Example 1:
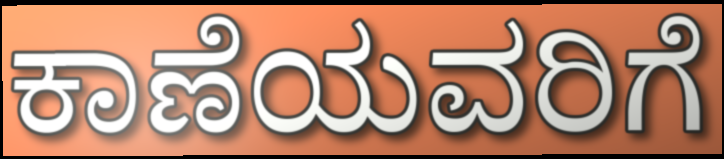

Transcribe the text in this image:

ಕಾಣೆಯವರಿಗೆ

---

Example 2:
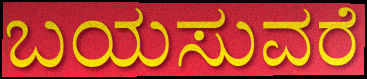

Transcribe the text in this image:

ಬಯಸುವರೆ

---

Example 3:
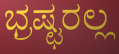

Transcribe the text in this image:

ಭ್ರಷ್ಟರಲ್ಲ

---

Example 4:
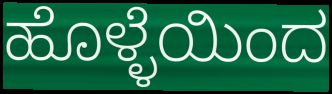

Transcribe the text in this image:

ಹೊಳ್ಳೆಯಿಂದ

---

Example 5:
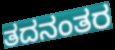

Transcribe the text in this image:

ತದನಂತರ